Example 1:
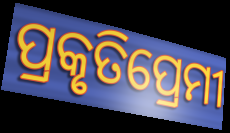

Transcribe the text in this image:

ପ୍ରକୃତିପ୍ରେମୀ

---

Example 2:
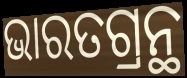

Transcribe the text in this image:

ଭାରତଗ୍ରନ୍ଥ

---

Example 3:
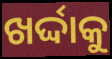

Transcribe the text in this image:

ଖର୍ଦ୍ଦାକୁ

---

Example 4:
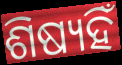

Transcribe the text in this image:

ଶିଷ୍ୟହିଁ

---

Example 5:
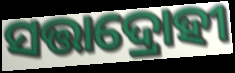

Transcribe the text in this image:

ସତ୍ତାଦ୍ରୋହୀ